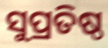
ସୁପ୍ରତିଷ୍ଠ